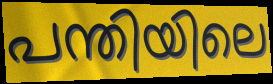
പന്തിയിലെ